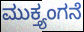
ಮುಕ್ತ್ಯಂಗನೆ